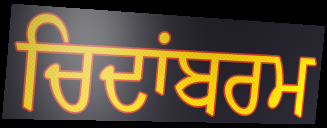
ਚਿਦਾਂਬਰਮ